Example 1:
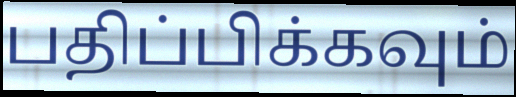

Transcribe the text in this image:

பதிப்பிக்கவும்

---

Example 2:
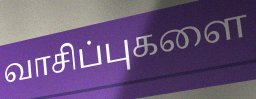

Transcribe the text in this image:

வாசிப்புகளை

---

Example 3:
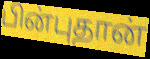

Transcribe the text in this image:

பின்புதான்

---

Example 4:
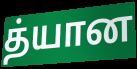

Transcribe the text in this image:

த்யான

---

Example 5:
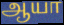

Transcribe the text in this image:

ஆயா